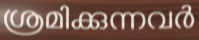
ശ്രമിക്കുന്നവർ